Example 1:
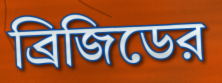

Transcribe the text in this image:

ব্রিজিডের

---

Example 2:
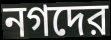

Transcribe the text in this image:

নগদের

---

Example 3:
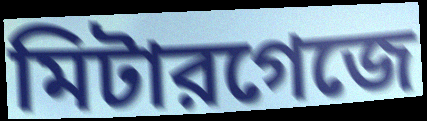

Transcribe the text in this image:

মিটারগেজে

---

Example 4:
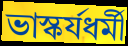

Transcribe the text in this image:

ভাস্কর্যধর্মী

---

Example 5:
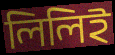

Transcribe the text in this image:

লিলিই